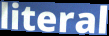
literal